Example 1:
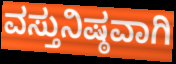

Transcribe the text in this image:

ವಸ್ತುನಿಷ್ಠವಾಗಿ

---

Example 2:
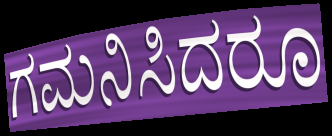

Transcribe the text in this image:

ಗಮನಿಸಿದರೂ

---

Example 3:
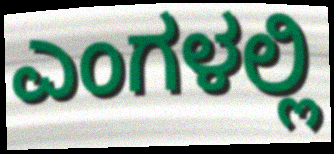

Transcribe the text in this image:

ಎಂಗಳಲ್ಲಿ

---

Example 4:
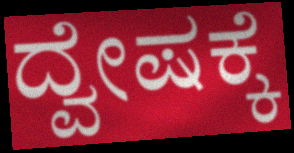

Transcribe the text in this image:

ದ್ವೇಷಕ್ಕೆ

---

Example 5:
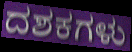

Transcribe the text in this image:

ದಶಕಗಳು